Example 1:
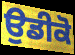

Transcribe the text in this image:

ਉਡੀਕੋ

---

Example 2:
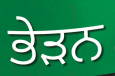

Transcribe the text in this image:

ਭੇੜਨ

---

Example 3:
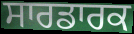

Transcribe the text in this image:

ਸਾਰਡਾਰਕ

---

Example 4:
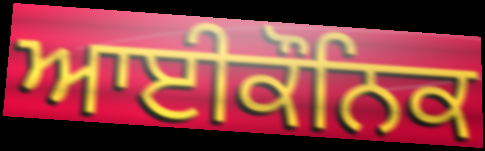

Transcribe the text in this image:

ਆਈਕੌਨਿਕ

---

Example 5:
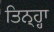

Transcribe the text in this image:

ਤਿਨ੍ਹ੍ਹਾ